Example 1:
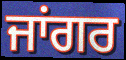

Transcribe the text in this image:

ਜਾਂਗਰ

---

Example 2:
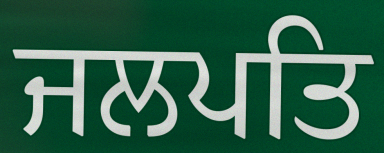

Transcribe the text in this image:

ਜਲਪਤਿ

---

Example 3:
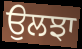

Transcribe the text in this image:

ਉਲਝਾ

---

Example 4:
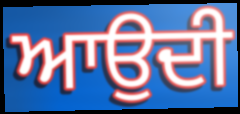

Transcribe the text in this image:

ਆਉਦੀ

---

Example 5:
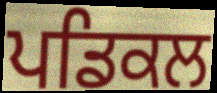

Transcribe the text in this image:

ਪਡਿਕਲ